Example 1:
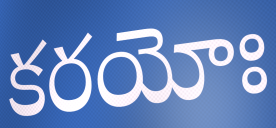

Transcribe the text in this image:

కరయోః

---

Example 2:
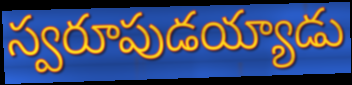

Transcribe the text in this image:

స్వరూపుడయ్యాడు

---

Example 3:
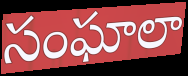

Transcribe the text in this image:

సంఘాలా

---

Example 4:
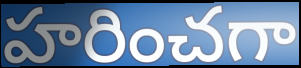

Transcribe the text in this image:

హరించగా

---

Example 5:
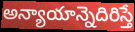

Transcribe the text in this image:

అన్యాయాన్నెదిరిస్తే